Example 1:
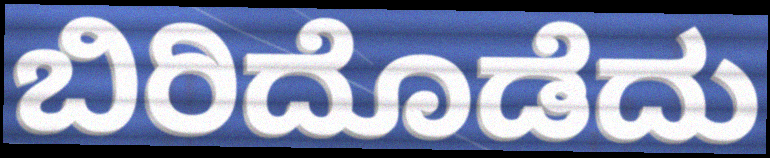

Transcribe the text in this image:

ಬಿರಿದೊಡೆದು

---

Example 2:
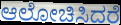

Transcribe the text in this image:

ಆಲೋಚಿಸಿದರೆ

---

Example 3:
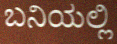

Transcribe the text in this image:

ಬನಿಯಲ್ಲಿ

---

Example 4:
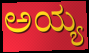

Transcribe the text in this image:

ಅಯ್ಯ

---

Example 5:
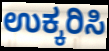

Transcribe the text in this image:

ಉಕ್ಕರಿಸಿ